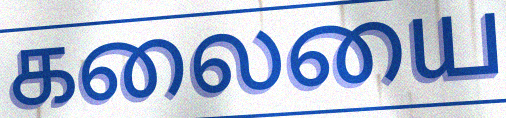
கலையை